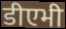
डीएभी